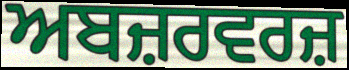
ਅਬਜ਼ਰਵਰਜ਼